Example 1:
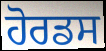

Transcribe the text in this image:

ਹੋਰਡਸ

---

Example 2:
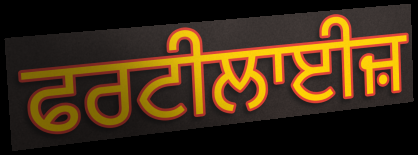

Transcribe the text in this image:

ਫਰਟੀਲਾਈਜ਼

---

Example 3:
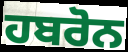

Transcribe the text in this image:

ਹਬਰੋਨ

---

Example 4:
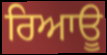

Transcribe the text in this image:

ਰਿਆਊ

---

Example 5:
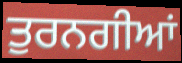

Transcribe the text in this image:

ਤੁਰਨਗੀਆਂ